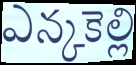
ఎన్కకెల్లి